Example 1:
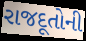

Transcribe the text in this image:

રાજદૂતોની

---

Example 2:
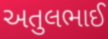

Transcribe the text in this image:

અતુલભાઈ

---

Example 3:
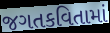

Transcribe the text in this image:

જગતકવિતામાં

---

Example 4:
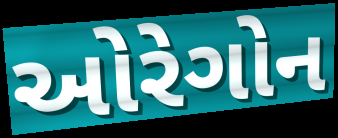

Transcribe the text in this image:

ઓરેગોન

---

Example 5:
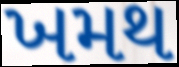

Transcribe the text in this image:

ખમથ